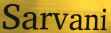
Sarvani